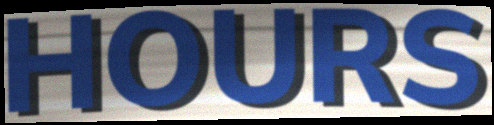
HOURS